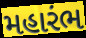
મહારંભ